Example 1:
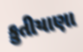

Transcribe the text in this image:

કુતીયાણા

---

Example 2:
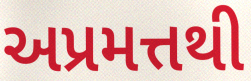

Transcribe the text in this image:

અપ્રમત્તથી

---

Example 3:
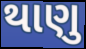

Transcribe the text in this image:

થાણુ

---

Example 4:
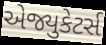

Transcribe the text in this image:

એજ્યુકેટર્સ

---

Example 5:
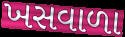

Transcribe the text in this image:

ખસવાળા